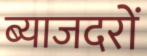
ब्याजदरों